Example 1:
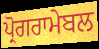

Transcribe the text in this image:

ਪ੍ਰੋਗਰਾਮੇਬਲ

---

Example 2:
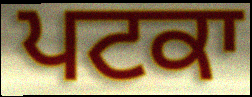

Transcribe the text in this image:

ਪਟਕਾ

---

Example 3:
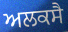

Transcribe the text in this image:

ਅਲਕਸੈ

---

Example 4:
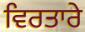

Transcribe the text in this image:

ਵਿਰਤਾਰੇ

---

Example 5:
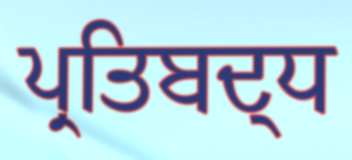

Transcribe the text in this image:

ਪ੍ਰਤਿਬਦ੍ਧ